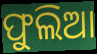
ଫୁଲିଆ